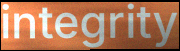
integrity